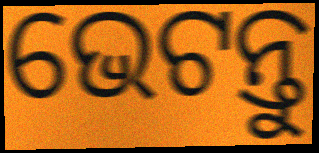
ଭେଟନ୍ତୁ